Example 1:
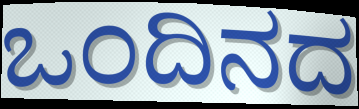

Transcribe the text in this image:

ಒಂದಿನದ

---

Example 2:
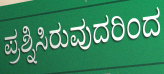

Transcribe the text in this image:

ಪ್ರಶ್ನಿಸಿರುವುದರಿಂದ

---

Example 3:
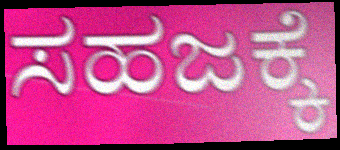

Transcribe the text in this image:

ಸಹಜಕ್ಕೆ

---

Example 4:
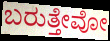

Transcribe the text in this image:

ಬರುತ್ತೇವೋ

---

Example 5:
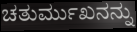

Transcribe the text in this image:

ಚತುರ್ಮುಖನನ್ನು